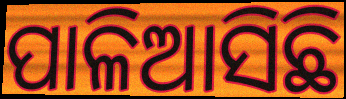
ପାଳିଆସିଛି